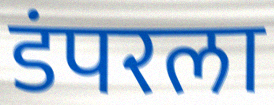
डंपरला